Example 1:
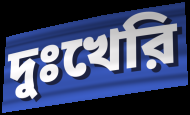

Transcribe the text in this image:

দুঃখেরি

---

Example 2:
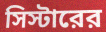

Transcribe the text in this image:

সিস্টারের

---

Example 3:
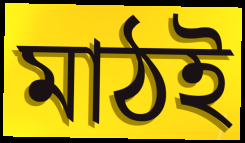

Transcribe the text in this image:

মাঠই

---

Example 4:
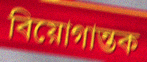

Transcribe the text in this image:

বিয়োগান্তক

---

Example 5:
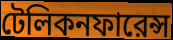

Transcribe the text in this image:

টেলিকনফারেন্স